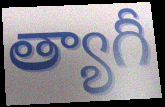
త్యాగీ